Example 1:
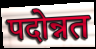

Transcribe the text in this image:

पदोन्नत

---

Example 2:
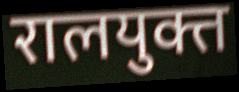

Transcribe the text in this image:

रालयुक्त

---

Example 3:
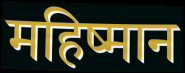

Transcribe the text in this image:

महिष्मान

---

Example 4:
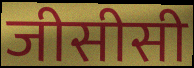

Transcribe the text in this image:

जीसीसी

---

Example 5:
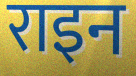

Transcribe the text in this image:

राइन